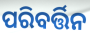
ପରିବର୍ତ୍ତିନ